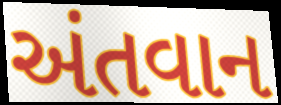
અંતવાન